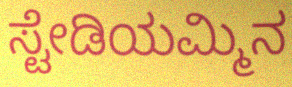
ಸ್ಟೇಡಿಯಮ್ಮಿನ